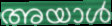
അയാൾ